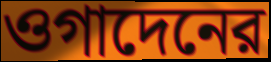
ওগাদেনের